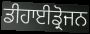
ਡੀਹਾਈਡ੍ਰੋਜਨ